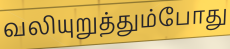
வலியுறுத்தும்போது